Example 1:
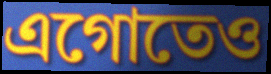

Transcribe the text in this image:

এগোতেও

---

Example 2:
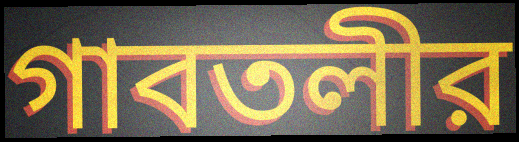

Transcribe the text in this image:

গাবতলীর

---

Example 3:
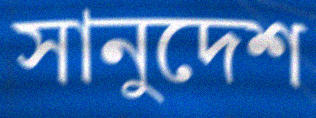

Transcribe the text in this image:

সানুদেশ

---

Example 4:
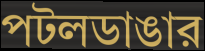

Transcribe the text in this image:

পটলডাঙার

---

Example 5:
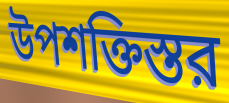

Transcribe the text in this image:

উপশক্তিস্তর